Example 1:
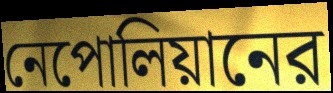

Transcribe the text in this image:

নেপোলিয়ানের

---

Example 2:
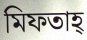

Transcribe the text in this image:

মিফতাহ্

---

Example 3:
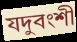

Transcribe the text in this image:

যদুবংশী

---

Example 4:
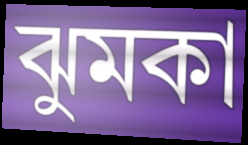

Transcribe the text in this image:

ঝুমকা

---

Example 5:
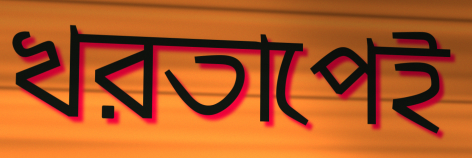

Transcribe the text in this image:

খরতাপেই